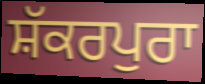
ਸ਼ੱਕਰਪੁਰਾ